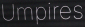
Umpires